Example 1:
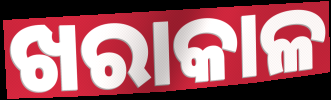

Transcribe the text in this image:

ଖରାକାଳ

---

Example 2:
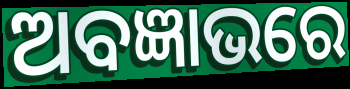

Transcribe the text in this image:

ଅବଜ୍ଞାଭରେ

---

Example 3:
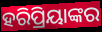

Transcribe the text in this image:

ହରିପ୍ରିୟାଙ୍କର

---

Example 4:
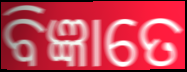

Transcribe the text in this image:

ବିଜ୍ଞାତେ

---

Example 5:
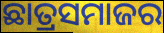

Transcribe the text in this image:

ଛାତ୍ରସମାଜର